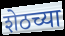
शेठच्या